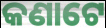
କଣାଟେ